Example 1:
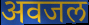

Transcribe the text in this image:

अवजल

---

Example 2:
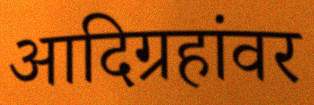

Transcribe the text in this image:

आदिग्रहांवर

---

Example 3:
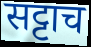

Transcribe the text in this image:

सट्टाच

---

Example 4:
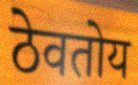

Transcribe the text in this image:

ठेवतोय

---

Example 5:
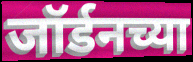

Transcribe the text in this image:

जॉर्डनच्या